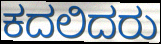
ಕದಲಿದರು